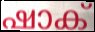
ഷാക്